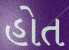
હોત